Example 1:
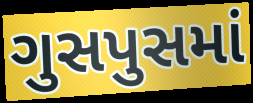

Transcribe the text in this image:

ગુસપુસમાં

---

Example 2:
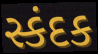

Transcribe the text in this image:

સ્કંદક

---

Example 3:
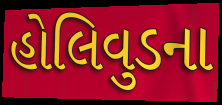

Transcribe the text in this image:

હોલિવુડના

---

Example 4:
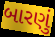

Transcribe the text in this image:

બારણું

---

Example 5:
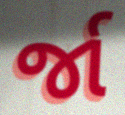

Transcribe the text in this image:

ર્જા